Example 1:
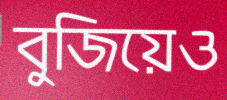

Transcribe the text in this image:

বুজিয়েও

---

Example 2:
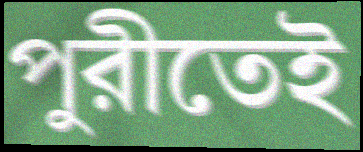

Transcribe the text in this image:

পুরীতেই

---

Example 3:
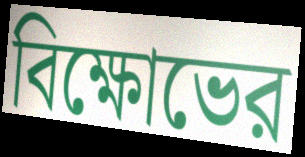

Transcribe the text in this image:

বিক্ষোভের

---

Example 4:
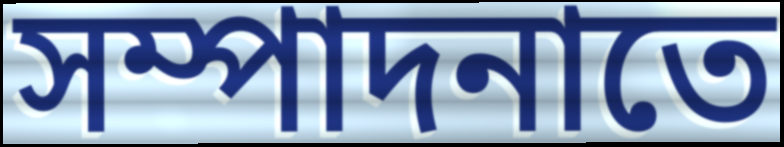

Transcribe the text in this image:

সম্পাদনাতে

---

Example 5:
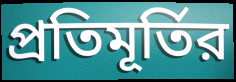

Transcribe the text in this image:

প্রতিমূর্তির